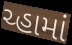
ચ્હામાં